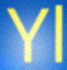
Yl